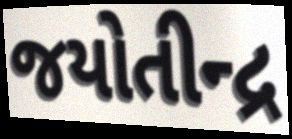
જયોતીન્દ્ર